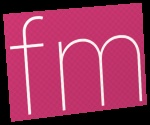
fm